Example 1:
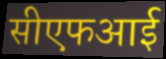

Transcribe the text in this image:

सीएफआई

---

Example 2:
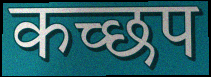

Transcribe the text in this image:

कच्छप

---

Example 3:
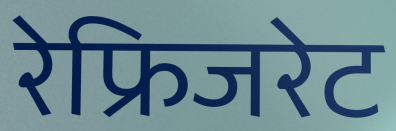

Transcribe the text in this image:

रेफ्रिजरेट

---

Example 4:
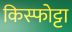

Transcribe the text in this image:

किस्फोट्टा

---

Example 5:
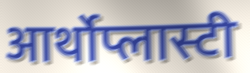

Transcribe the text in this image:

आर्थोप्लास्टी